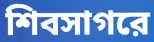
শিবসাগরে